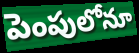
పెంపులోనూ